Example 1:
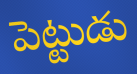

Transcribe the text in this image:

పెట్టుడు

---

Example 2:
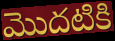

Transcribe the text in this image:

మొదటికి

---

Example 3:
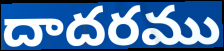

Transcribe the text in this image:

దాదరము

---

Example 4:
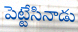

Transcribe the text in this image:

పెట్టేసినాడు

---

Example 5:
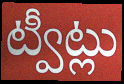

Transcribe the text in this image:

ట్వీట్లు